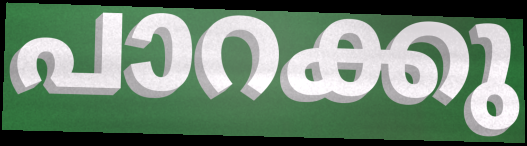
പാറക്കു